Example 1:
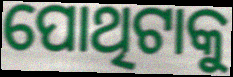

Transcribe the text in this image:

ପୋଥିଟାକୁ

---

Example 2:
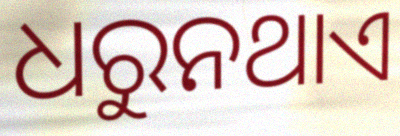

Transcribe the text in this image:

ଧରୁନଥାଏ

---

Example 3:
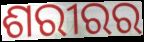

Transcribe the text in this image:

ଶରୀରର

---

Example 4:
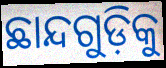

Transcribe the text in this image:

ଛାନ୍ଦଗୁଡ଼ିକୁ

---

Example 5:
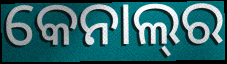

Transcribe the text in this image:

କେନାଲ୍‍ର